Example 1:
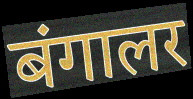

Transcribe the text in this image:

बंगालर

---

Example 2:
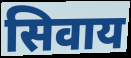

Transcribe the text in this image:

सिवाय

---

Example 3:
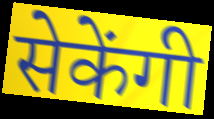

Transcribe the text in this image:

सेकेंगी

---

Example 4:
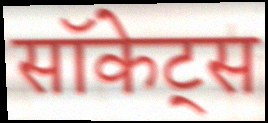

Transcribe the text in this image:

सॉकेट्स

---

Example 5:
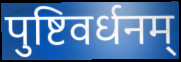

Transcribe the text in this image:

पुष्टिवर्धनम्